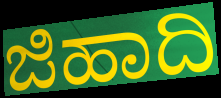
ಜಿಹಾದಿ